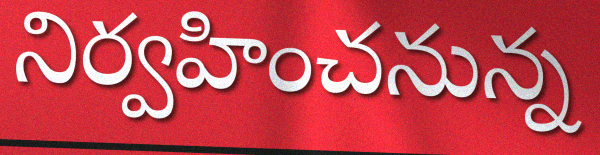
నిర్వహించనున్న